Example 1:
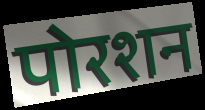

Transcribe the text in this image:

पोरशन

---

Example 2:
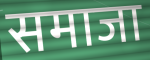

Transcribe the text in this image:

समाजा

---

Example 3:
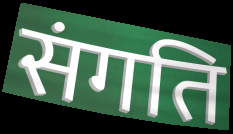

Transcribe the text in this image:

संगति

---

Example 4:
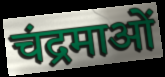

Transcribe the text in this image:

चंद्रमाओं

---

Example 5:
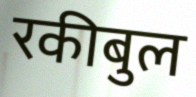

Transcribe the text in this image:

रकीबुल